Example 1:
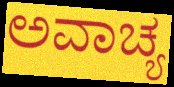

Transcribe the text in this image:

ಅವಾಚ್ಯ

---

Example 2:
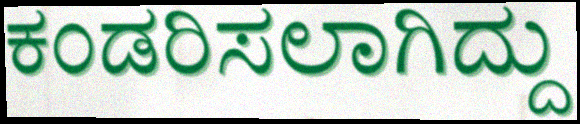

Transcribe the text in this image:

ಕಂಡರಿಸಲಾಗಿದ್ದು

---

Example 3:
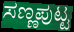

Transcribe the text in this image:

ಸಣ್ಣಪುಟ್ಟ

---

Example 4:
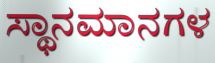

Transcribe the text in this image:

ಸ್ಥಾನಮಾನಗಳ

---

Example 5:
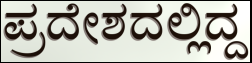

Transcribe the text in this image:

ಪ್ರದೇಶದಲ್ಲಿದ್ದ